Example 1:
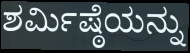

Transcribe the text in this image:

ಶರ್ಮಿಷ್ಠೆಯನ್ನು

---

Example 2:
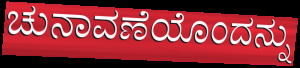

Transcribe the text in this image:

ಚುನಾವಣೆಯೊಂದನ್ನು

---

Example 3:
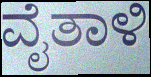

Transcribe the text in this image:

ವೈತಾಳಿ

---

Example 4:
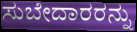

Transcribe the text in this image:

ಸುಬೇದಾರರನ್ನು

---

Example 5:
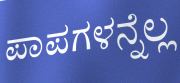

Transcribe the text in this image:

ಪಾಪಗಳನ್ನೆಲ್ಲ